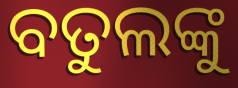
ବତୁଲଙ୍କୁ